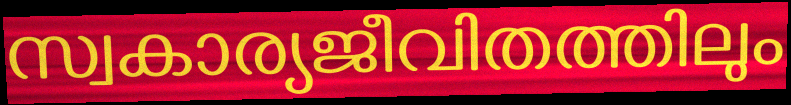
സ്വകാര്യജീവിതത്തിലും